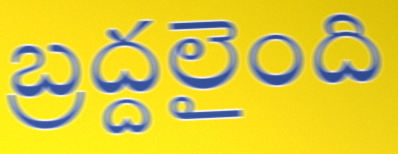
బ్రద్దలైంది